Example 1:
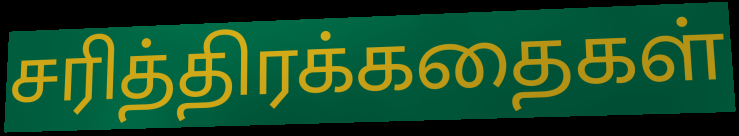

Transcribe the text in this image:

சரித்திரக்கதைகள்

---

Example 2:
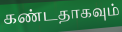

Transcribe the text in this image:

கண்டதாகவும்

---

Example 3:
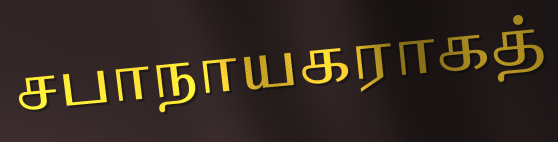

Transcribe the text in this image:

சபாநாயகராகத்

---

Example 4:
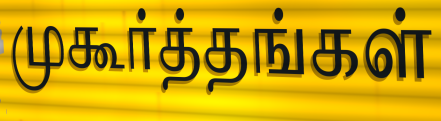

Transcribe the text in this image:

முகூர்த்தங்கள்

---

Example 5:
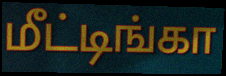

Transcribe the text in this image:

மீட்டிங்கா